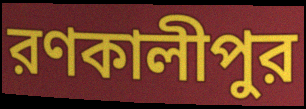
রণকালীপুর